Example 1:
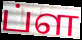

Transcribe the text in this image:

ப்ள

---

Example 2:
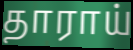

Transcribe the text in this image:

தாராய்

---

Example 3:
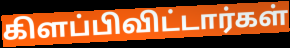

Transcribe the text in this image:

கிளப்பிவிட்டார்கள்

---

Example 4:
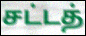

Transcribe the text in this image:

சட்டத்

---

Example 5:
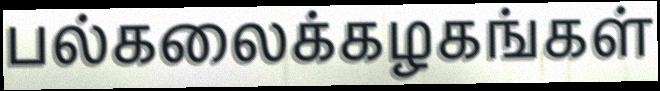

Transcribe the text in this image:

பல்கலைக்கழகங்கள்